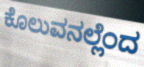
ಕೊಲುವನಲ್ಲೆಂದ